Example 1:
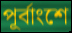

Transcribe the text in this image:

পূর্বাংশে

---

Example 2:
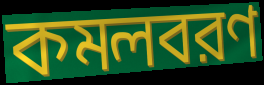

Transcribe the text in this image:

কমলবরণ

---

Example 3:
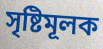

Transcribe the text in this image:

সৃষ্টিমূলক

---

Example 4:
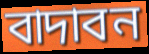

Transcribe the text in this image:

বাদাবন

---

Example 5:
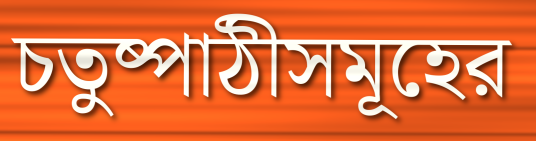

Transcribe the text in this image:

চতুষ্পাঠীসমূহের